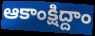
ఆకాంక్షిద్దాం